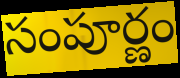
సంపూర్ణం